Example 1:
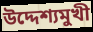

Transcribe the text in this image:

উদ্দেশ্যমুখী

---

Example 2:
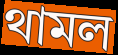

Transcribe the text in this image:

থামল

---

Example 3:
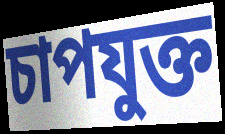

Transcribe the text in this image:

চাপযুক্ত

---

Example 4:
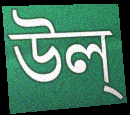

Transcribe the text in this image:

উল্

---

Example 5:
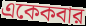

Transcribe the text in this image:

একেকবার